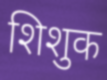
शिशुक